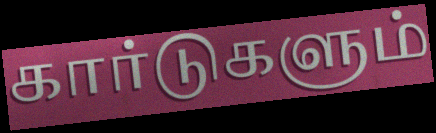
கார்டுகளும்